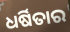
ଧର୍ଷିତାର